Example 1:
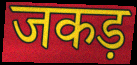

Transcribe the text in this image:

जकड़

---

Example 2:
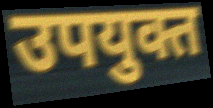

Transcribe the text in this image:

उपयुक्त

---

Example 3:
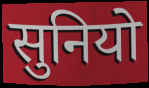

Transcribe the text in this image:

सुनियो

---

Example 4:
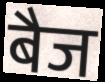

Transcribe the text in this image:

बैज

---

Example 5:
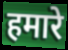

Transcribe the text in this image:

हमारे